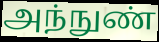
அந்நுண்